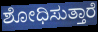
ಶೋಧಿಸುತ್ತಾರೆ